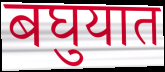
बघुयात